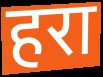
हरा